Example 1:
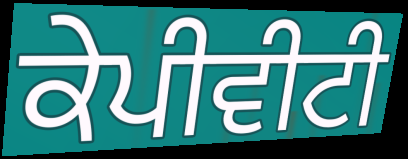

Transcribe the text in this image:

ਕੇਪੀਵੀਟੀ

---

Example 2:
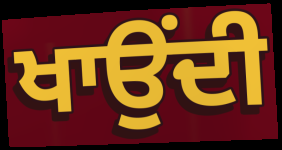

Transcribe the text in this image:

ਖਾਉਂਦੀ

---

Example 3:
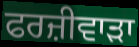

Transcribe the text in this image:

ਫਰਜ਼ੀਵਾਡ਼ਾ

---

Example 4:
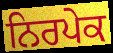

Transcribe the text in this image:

ਨਿਰਪੇਕ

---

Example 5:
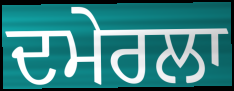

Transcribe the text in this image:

ਦਮੇਰਲਾ